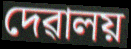
দেৱালয়